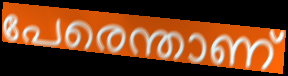
പേരെന്താണ്